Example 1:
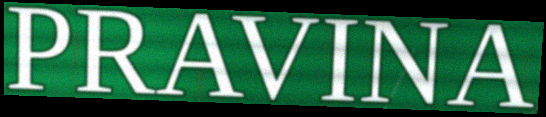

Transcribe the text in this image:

PRAVINA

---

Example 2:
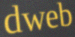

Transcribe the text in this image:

dweb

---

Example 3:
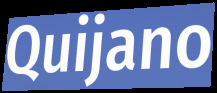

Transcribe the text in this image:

Quijano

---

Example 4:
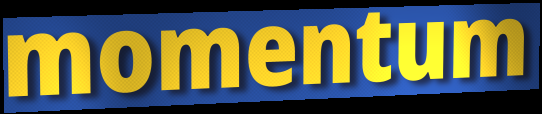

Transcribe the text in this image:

momentum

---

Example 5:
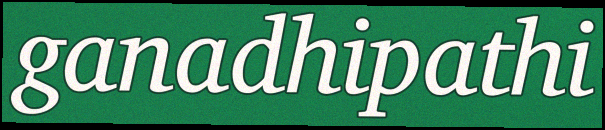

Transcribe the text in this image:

ganadhipathi